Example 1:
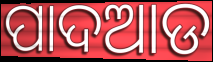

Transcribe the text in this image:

ପାଦଆଡ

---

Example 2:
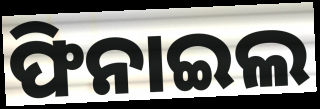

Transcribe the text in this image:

ଫିନାଇଲ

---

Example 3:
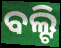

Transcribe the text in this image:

ବଲ୍ଟି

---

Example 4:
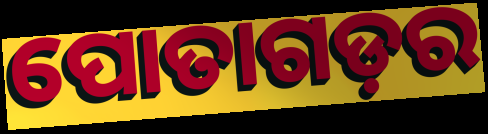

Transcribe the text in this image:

ପୋତାଗଡ଼ର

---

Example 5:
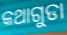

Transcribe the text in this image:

କଥାଗୁଡା